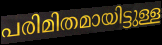
പരിമിതമായിട്ടുള്ള